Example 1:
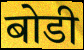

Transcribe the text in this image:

बोडी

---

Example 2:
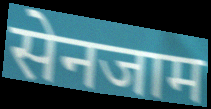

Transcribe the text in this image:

सेनजाम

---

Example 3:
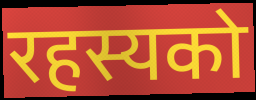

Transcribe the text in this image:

रहस्यको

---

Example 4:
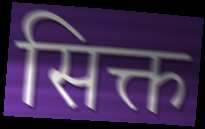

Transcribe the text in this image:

सिक्त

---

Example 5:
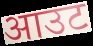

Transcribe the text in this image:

आउट